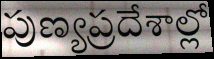
పుణ్యప్రదేశాల్లో